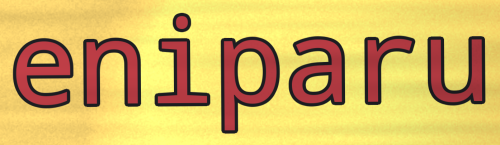
eniparu